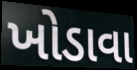
ખોડાવા